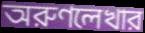
অরুণলেখার